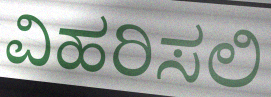
ವಿಹರಿಸಲಿ